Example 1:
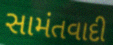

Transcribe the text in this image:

સામંતવાદી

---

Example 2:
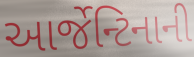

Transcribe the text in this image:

આર્જેન્ટિનાની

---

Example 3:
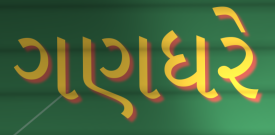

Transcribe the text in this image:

ગણધરે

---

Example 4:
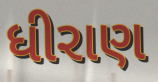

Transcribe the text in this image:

ધીરાણ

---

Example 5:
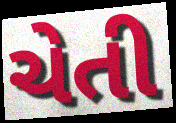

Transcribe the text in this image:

ચેતી